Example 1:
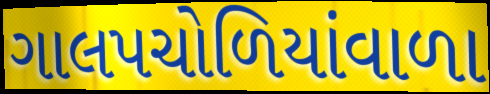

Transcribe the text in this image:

ગાલપચોળિયાંવાળા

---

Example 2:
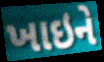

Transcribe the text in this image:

ખાઇને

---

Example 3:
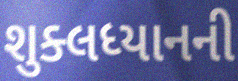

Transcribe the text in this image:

શુક્લધ્યાનની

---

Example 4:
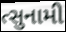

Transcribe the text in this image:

ત્સુનામી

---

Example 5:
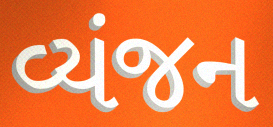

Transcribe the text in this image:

વ્યંજન